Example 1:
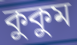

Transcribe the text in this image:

কুকুম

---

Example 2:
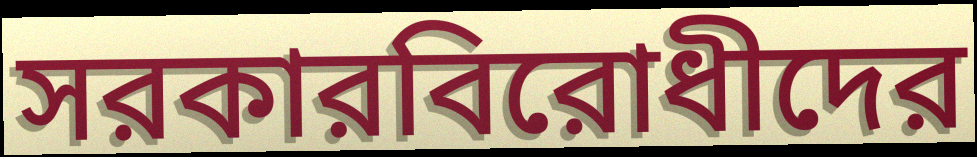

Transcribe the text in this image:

সরকারবিরোধীদের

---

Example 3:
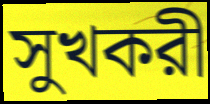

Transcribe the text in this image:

সুখকরী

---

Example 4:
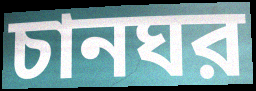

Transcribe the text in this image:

চানঘর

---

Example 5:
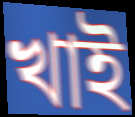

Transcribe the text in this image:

খাই